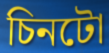
চিনটো